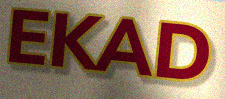
EKAD